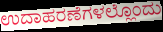
ಉದಾಹರಣೆಗಳಲ್ಲೊಂದು